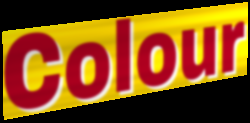
Colour